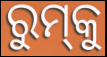
ରୁମ୍‍କୁ